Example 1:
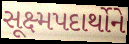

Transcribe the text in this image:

સૂક્ષ્મપદાર્થોને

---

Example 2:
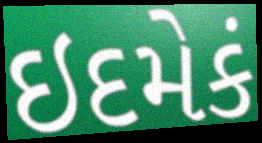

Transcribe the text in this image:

ઇદમેકં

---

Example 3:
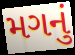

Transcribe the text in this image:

મગનું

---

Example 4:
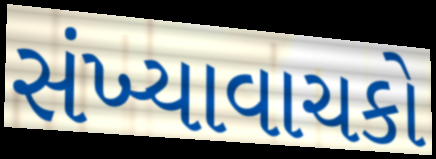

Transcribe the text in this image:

સંખ્યાવાચકો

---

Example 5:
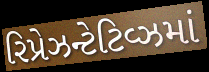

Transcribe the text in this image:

રિપ્રેઝન્ટેટિવ્ઝમાં